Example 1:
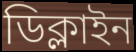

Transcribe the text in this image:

ডিক্লাইন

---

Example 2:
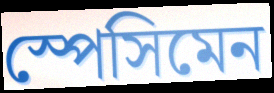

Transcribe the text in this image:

স্পেসিমেন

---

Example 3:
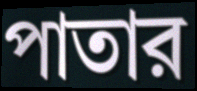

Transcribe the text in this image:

পাতার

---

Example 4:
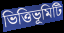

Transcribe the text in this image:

ভিত্তিভূমিটি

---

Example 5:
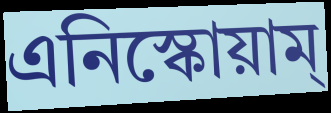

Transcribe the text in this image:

এনিস্কোয়াম্